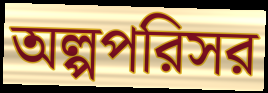
অল্পপরিসর